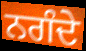
ਨਗੰਦੇ